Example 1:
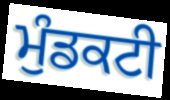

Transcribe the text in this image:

ਮੁੰਡਕਟੀ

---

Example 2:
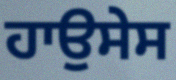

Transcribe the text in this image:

ਹਾਉਸੇਸ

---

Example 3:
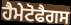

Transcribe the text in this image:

ਹੈਮੇਟੋਫੈਗਸ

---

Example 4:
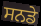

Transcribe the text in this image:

ਸਨਡੇ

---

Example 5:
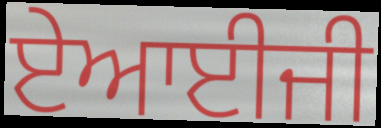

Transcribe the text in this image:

ਏਆਈਜੀ